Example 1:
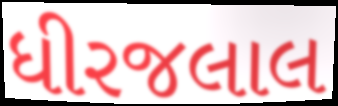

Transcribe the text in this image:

ધીરજલાલ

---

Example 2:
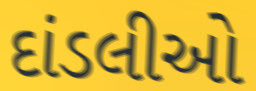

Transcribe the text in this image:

દાંડલીઓ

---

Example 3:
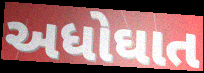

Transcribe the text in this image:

અધોઘાત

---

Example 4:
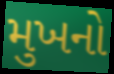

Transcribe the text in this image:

મુખનો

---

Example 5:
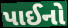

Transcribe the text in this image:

પાઈનો